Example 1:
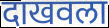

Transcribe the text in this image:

दाखवला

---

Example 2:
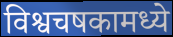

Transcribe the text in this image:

विश्वचषकामध्ये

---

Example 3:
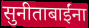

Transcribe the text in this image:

सुनीताबाईंना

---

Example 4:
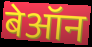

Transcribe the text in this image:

बेऑन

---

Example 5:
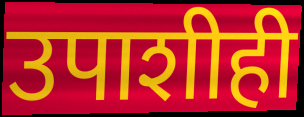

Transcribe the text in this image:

उपाशीही